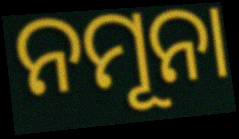
ନମୂନା